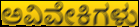
ಅವಿವೇಕಿಗಳು